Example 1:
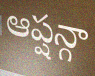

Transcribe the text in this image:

ఆప్షన్గా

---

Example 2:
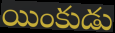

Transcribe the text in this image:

యింకుడు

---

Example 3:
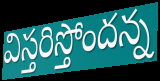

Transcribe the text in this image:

విస్తరిస్తోందన్న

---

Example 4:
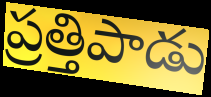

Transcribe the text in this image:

ప్రత్తిపాడు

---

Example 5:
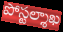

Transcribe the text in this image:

పోస్టల్శాఖ